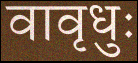
वावृधुः